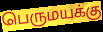
பெருமயக்கு